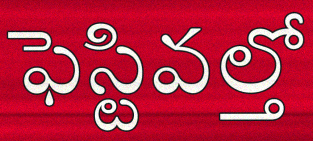
ఫెస్టివల్తో